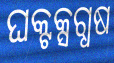
ଘକ୍ଟକ୍ସଗ୍ଧଷ